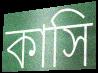
কাসি